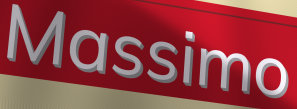
Massimo